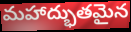
మహాద్భుతమైన